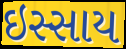
ઇસ્સાય